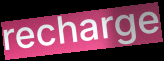
recharge